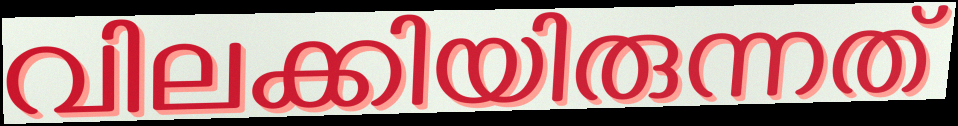
വിലക്കിയിരുന്നത്